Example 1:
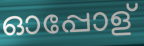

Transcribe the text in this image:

ഓപ്പോള്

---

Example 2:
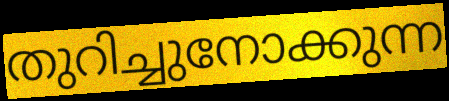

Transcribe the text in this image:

തുറിച്ചുനോക്കുന്ന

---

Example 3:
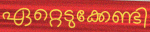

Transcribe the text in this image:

ഏറ്റെടുക്കേണ്ടി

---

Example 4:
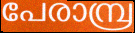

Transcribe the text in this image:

പേരാമ്പ്ര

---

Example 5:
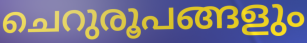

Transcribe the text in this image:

ചെറുരൂപങ്ങളും